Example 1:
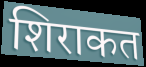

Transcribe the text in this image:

शिराकत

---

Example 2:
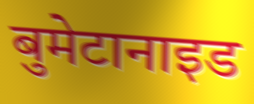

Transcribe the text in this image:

बुमेटानाइड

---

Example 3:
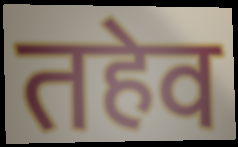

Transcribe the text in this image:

तहेव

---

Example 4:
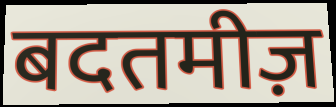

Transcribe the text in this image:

बदतमीज़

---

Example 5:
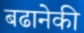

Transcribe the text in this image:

बढानेकी